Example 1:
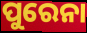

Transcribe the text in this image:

ପୁରେନା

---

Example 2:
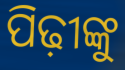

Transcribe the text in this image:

ପିଢ଼ୀଙ୍କୁ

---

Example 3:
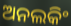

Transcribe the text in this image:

ଅନଲକିଂ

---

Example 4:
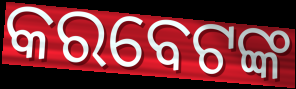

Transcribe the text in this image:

କରବେଟଙ୍କ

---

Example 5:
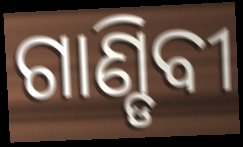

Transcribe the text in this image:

ଗାଣ୍ଡିବୀ